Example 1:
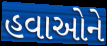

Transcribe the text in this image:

હવાઓને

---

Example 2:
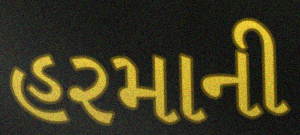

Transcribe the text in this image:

હરમાની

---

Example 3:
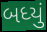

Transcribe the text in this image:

બધ્યું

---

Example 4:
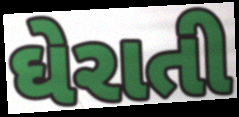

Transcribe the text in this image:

ઘેરાતી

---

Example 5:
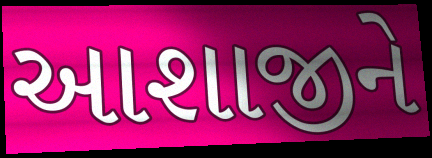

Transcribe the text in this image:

આશાજીને